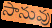
సానువు